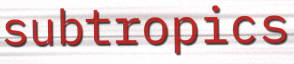
subtropics